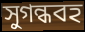
সুগন্ধবহ